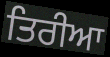
ਤਿਰੀਆ